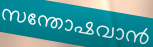
സന്തോഷവാൻ